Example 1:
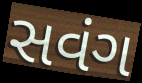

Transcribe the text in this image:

સવંગ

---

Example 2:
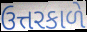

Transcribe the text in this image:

ઉત્તરકાળે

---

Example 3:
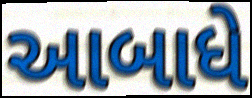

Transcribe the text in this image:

આબાધે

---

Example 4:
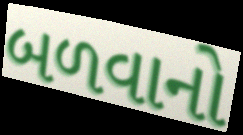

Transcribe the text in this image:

બળવાનો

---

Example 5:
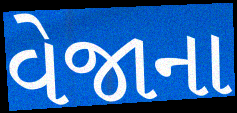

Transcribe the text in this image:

વેજાના